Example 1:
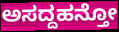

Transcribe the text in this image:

ಅಸದ್ದಹನ್ತೋ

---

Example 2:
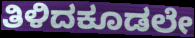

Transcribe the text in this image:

ತಿಳಿದಕೂಡಲೇ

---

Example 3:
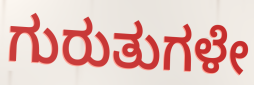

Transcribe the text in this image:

ಗುರುತುಗಳೇ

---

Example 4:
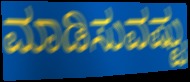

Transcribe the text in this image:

ಮಾಡಿಸುವಷ್ಟು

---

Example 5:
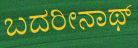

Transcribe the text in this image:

ಬದರೀನಾಥ್